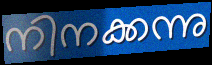
നിനക്കന്നു